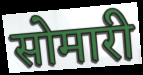
सोमारी